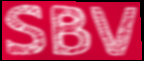
SBV